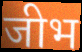
जीभ